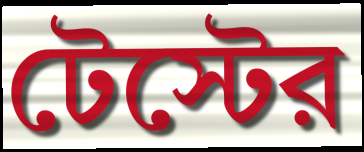
টেস্টের